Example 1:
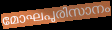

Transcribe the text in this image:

മോഘപുരിസാനം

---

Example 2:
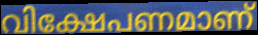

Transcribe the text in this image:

വിക്ഷേപണമാണ്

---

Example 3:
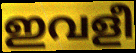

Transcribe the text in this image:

ഇവളീ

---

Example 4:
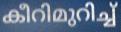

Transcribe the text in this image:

കീറിമുറിച്ച്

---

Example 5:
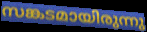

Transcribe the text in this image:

സങ്കടമായിരുന്നു